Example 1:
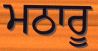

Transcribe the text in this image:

ਮਠਾਰੂ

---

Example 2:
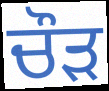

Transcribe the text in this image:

ਚੌੜ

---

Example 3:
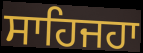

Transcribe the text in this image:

ਸਾਹਿਜਹਾ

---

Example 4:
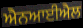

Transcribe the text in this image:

ਐਨਆਈਐਲ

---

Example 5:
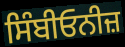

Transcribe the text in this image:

ਸਿੰਬੀਓਨੀਜ਼